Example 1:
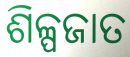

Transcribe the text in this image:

ଶିଳ୍ପଜାତ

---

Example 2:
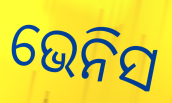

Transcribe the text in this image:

ଭେନିସ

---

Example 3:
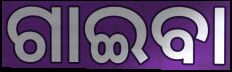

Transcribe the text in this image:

ଗାଇବା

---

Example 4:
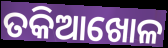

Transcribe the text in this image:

ତକିଆଖୋଳ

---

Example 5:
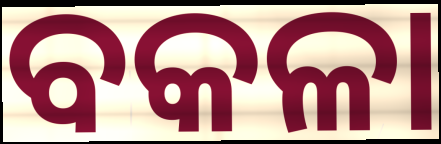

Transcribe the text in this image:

ବକଳା